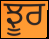
ਝੂਰ